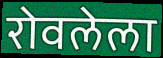
रोवलेला